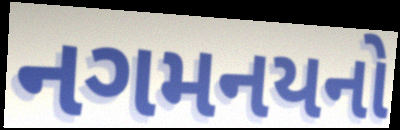
નગમનયનો